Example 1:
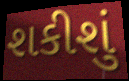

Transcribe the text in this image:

શકીશું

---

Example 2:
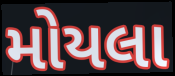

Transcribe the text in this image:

મોયલા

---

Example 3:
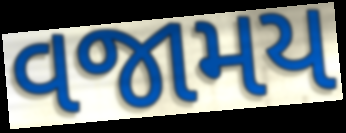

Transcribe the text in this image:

વજામય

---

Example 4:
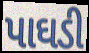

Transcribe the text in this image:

પાઘડી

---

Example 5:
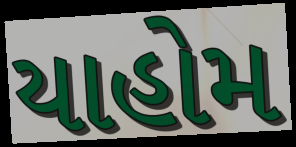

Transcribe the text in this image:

યાહોમ